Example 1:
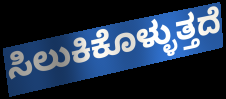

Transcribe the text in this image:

ಸಿಲುಕಿಕೊಳ್ಳುತ್ತದೆ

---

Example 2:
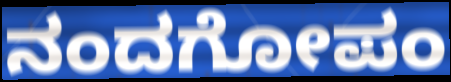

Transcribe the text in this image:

ನಂದಗೋಪಂ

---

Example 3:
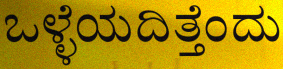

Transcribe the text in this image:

ಒಳ್ಳೆಯದಿತ್ತೆಂದು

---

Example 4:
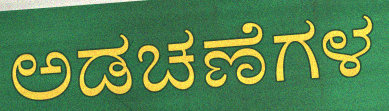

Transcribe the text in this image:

ಅಡಚಣೆಗಳ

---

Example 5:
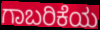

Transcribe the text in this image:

ಗಾಬರಿಕೆಯ